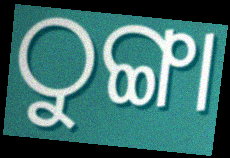
ଠୁଙ୍ଗା